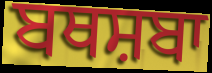
ਬਥਸ਼ਬਾ